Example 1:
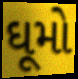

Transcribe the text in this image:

ઘૂમો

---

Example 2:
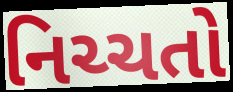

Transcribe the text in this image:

નિચ્ચતો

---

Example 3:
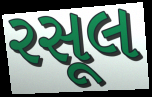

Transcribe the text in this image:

રસૂલ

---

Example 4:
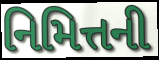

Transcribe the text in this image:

નિમિત્તની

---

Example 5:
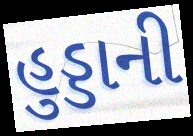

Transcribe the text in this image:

હુડ્ડાની